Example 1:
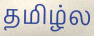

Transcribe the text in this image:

தமிழ்ல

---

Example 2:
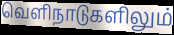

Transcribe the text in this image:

வெளிநாடுகளிலும்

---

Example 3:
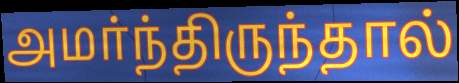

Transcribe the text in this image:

அமர்ந்திருந்தால்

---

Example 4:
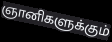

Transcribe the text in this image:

ஞானிகளுக்கும்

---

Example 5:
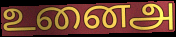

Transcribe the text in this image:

உனைஅ